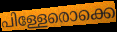
പിള്ളേരൊക്കെ